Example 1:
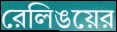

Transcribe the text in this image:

রেলিঙয়ের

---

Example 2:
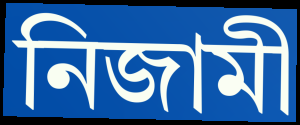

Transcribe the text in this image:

নিজামী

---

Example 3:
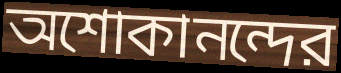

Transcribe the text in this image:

অশোকানন্দের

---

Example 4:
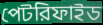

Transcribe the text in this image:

পেটরিফাইড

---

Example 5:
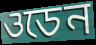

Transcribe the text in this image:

ওডেন